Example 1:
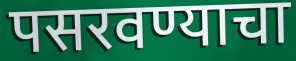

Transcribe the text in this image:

पसरवण्याचा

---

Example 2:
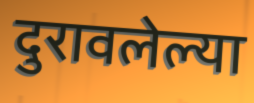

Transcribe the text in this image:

दुरावलेल्या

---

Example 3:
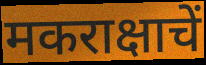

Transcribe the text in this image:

मकराक्षाचें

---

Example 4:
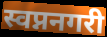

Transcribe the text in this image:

स्वप्ननगरी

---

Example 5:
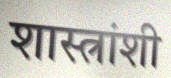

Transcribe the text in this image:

शास्त्रांशी